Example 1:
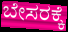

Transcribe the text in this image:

ಬೇಸರಕ್ಕೆ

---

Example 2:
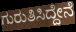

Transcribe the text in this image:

ಗುರುತಿಸಿದ್ದೇನೆ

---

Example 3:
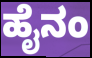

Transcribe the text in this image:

ಹೈನಂ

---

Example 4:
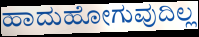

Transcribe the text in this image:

ಹಾದುಹೋಗುವುದಿಲ್ಲ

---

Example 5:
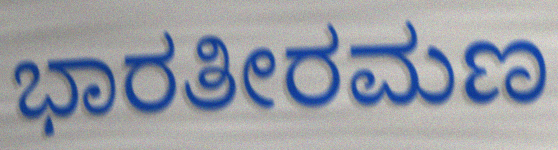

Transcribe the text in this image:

ಭಾರತೀರಮಣ